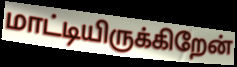
மாட்டியிருக்கிறேன்